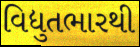
વિદ્યુતભારથી